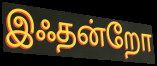
இஃதன்றோ